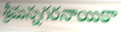
శ్రీమన్నగరనాయికా